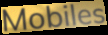
Mobiles